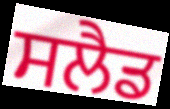
ਸਲੈਡ